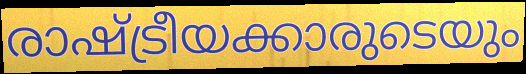
രാഷ്ട്രീയക്കാരുടെയും